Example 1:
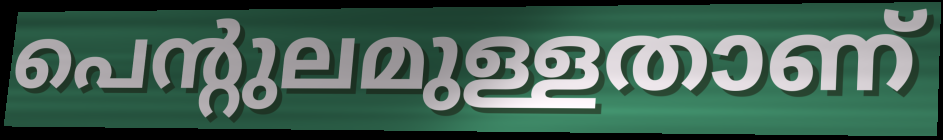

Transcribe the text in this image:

പെന്റുലമുള്ളതാണ്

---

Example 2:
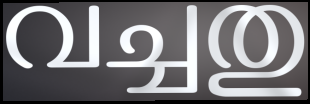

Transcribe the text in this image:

വച്ചതു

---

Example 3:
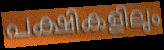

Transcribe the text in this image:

പക്ഷികളിലും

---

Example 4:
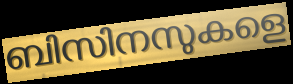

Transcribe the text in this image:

ബിസിനസുകളെ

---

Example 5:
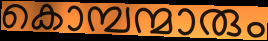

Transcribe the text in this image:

കൊമ്പന്മാരും